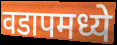
वडापमध्ये